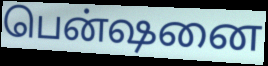
பென்ஷனை